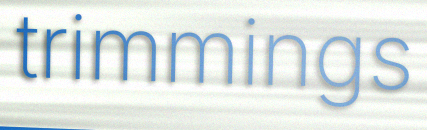
trimmings